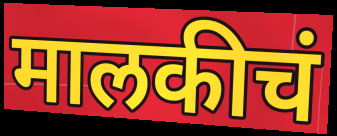
मालकीचं